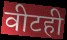
वीटही